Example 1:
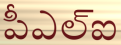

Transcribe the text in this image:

పీఎల్ఐ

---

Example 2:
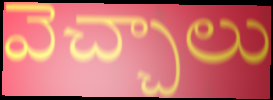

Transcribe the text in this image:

వెచ్చాలు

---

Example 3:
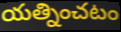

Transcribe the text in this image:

యత్నించటం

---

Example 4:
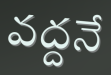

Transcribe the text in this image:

వద్దనే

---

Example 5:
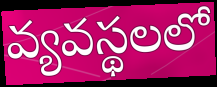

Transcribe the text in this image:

వ్యవస్థలలో